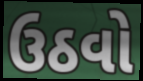
ઉઠવો